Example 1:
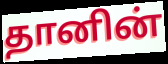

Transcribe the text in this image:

தானின்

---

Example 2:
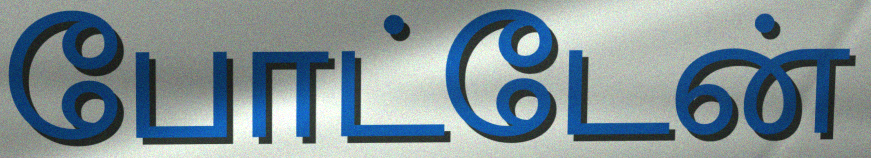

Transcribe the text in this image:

போட்டேன்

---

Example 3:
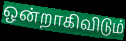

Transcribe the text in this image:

ஒன்றாகிவிடும்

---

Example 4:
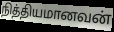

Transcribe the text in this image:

நித்தியமானவன்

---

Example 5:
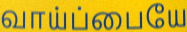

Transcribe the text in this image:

வாய்ப்பையே